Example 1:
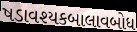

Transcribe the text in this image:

ષડાવશ્યકબાલાવબોધ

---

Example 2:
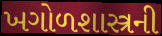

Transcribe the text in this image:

ખગોળશાસ્ત્રની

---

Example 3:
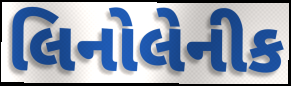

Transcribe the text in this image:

લિનોલેનીક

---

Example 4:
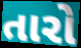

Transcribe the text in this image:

તારો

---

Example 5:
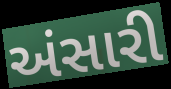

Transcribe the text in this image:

અંસારી